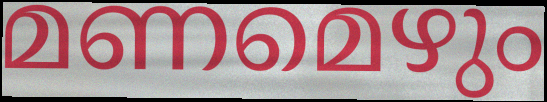
മണമെഴും